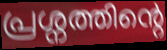
പ്രശ്നത്തിന്റെ